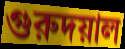
গুরুদয়াল